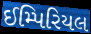
ઈમ્પિરિયલ